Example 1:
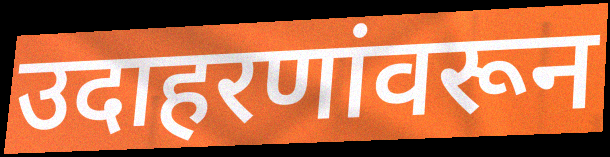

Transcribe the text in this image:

उदाहरणांवरून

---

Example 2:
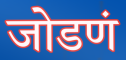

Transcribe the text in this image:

जोडणं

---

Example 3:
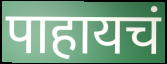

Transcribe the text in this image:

पाहायचं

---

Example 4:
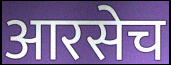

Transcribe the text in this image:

आरसेच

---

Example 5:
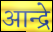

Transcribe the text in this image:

आन्द्रे